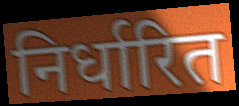
निर्धारित